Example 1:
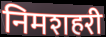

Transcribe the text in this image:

निमशहरी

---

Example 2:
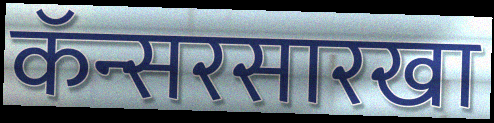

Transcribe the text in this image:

कॅन्सरसारखा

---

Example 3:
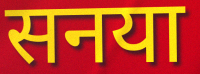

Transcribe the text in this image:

सनया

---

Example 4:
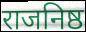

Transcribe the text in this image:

राजनिष्ठ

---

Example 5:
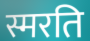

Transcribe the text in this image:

स्मरति